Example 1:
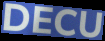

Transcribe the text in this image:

DECU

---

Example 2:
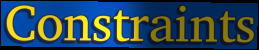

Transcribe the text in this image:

Constraints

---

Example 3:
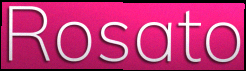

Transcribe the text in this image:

Rosato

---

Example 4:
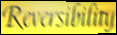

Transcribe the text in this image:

Reversibility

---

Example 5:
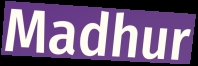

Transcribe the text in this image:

Madhur